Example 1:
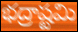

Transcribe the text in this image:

భద్రాష్టమి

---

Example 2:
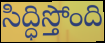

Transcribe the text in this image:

సిద్ధిస్తోంది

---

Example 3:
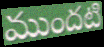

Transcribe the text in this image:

ముందటి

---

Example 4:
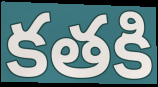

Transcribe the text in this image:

కతకి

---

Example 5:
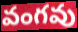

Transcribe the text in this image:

వంగవు